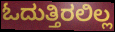
ಓದುತ್ತಿರಲಿಲ್ಲ